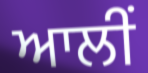
ਆਲੀਂ